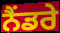
ਨੈਂਡਰੇ